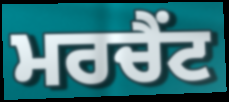
ਮਰਚੈਂਟ